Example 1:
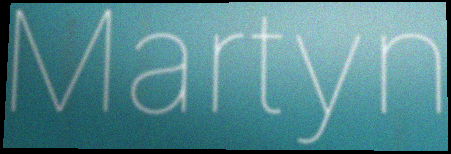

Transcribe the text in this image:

Martyn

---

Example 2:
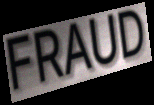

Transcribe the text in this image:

FRAUD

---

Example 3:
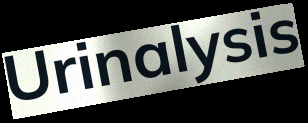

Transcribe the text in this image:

Urinalysis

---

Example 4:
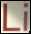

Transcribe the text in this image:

Li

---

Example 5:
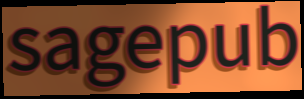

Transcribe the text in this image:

sagepub